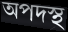
অপদস্থ